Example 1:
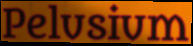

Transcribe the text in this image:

Pelusium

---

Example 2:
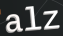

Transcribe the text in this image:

alz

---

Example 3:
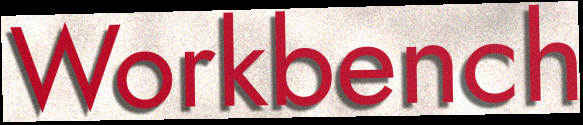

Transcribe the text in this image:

Workbench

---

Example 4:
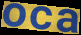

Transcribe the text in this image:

oca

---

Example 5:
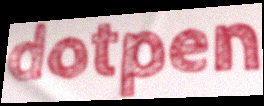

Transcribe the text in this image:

dotpen